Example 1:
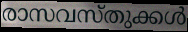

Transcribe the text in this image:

രാസവസ്തുക്കൾ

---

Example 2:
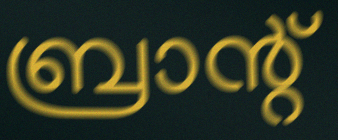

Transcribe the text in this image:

ബ്രാന്റ്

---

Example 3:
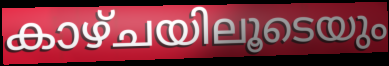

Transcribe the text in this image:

കാഴ്ചയിലൂടെയും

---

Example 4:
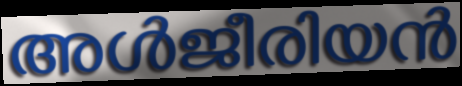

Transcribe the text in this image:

അൾജീരിയൻ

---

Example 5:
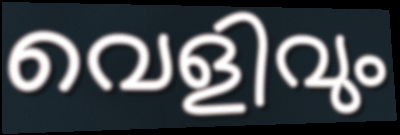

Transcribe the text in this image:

വെളിവും